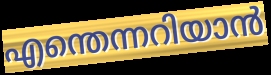
എന്തെന്നറിയാൻ